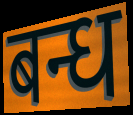
बन्ध